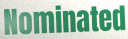
Nominated